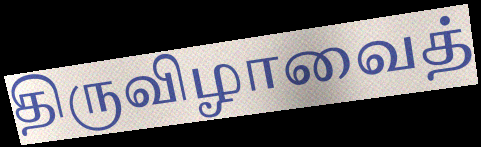
திருவிழாவைத்